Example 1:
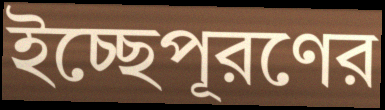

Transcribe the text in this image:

ইচ্ছেপূরণের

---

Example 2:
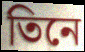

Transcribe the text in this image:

তিনে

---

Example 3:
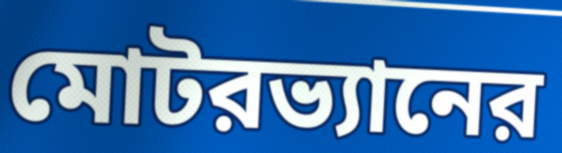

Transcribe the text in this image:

মোটরভ্যানের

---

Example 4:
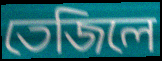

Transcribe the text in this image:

তেজিলে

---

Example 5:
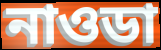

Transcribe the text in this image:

নাওডা